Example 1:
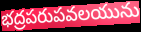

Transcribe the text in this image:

భద్రపరుపవలయును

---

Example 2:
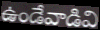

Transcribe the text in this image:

ఉండేవాడివి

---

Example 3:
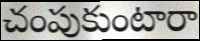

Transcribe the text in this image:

చంపుకుంటారా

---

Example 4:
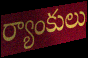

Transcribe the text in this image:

ర్యాంకులు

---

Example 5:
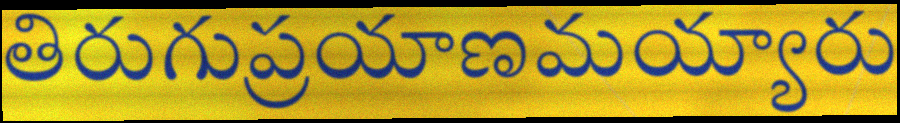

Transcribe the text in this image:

తిరుగుప్రయాణమయ్యారు